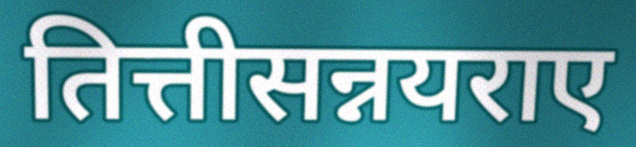
तित्तीसन्नयराए